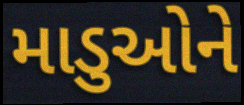
માડુઓને